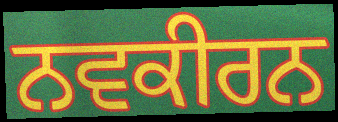
ਨਵਕੀਰਨ